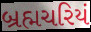
બ્રહ્મચરિયં